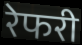
रेफरी